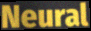
Neural